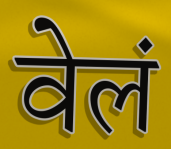
वेलं